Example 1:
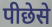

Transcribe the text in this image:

पीछेसे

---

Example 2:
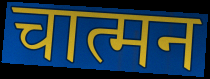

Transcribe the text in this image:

चात्मन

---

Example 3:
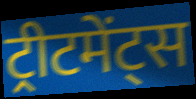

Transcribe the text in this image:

ट्रीटमेंट्स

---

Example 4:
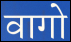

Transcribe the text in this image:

वागो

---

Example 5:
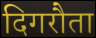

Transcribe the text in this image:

दिगरौता